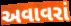
અવાવરાં